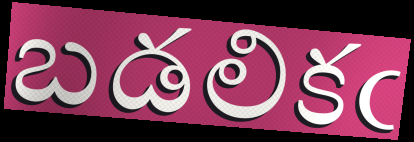
బడలికఁ